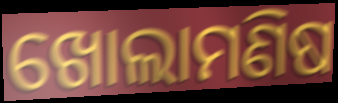
ଖୋଲାମଣିଷ